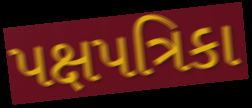
પક્ષપત્રિકા